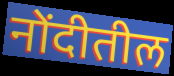
नोंदीतील